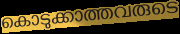
കൊടുക്കാത്തവരുടെ